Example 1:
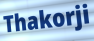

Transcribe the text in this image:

Thakorji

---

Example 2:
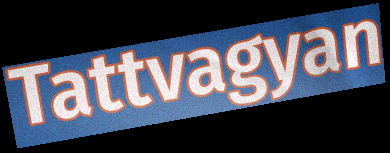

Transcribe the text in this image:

Tattvagyan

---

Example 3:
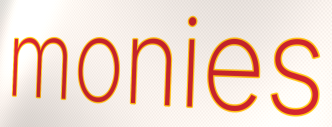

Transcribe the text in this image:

monies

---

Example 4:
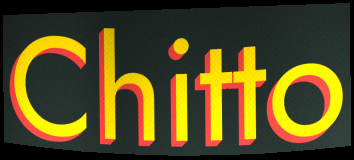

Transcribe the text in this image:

Chitto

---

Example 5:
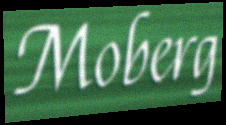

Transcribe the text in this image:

Moberg